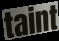
taint